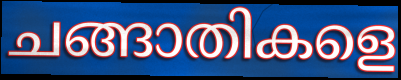
ചങ്ങാതികളെ